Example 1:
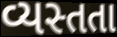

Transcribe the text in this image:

વ્યસ્તતા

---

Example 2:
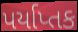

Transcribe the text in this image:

પર્યાપ્તક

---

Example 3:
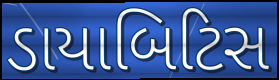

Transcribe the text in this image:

ડાયાબિટિસ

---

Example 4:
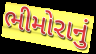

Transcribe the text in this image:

ભીમોરાનું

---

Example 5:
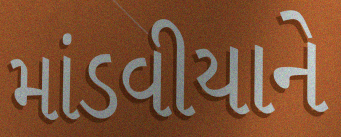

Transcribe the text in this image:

માંડવીયાને